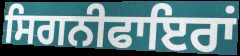
ਸਿਗਨੀਫਾਇਰਾਂ